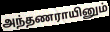
அந்தணராயினும்